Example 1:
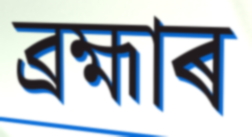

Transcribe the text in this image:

ব্ৰহ্মাৰ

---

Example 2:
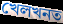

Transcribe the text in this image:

খেলখনত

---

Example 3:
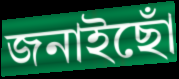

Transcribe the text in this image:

জনাইছোঁ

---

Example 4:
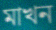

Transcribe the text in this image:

মাখন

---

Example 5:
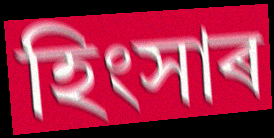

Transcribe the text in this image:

হিংসাৰ